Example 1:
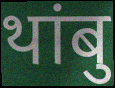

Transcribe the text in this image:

थांबु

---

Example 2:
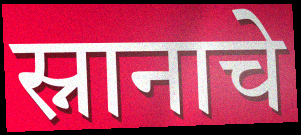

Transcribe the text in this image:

स्नानाचे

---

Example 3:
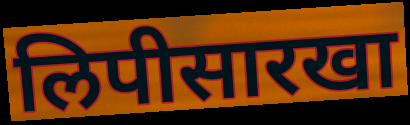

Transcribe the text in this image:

लिपीसारखा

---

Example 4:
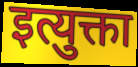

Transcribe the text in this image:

इत्युक्ता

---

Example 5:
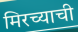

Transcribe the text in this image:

मिरच्याची